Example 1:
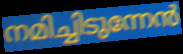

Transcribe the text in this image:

നമിച്ചിടുന്നേൻ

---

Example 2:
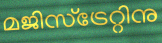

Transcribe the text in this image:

മജിസ്ട്രേറ്റിനു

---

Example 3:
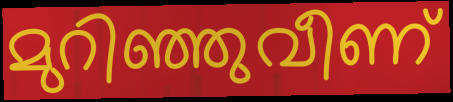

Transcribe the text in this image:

മുറിഞ്ഞുവീണ്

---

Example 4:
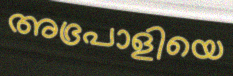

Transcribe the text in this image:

അഭ്രപാളിയെ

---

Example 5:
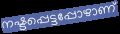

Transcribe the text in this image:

നഷ്ടപ്പെട്ടപ്പോഴാണ്